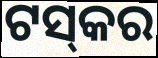
ଟସ୍‍କର